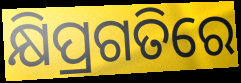
କ୍ଷିପ୍ରଗତିରେ